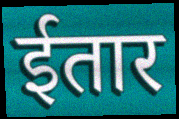
ईतार